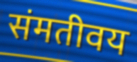
संमतीवय